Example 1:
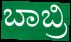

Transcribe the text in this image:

ಬಾಬ್ರಿ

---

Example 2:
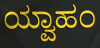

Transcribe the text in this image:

ಯ್ವಾಹಂ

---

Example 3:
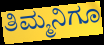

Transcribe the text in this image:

ತಿಮ್ಮನಿಗೂ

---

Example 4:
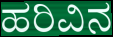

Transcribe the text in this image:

ಹರಿವಿನ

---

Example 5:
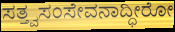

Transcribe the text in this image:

ಸತ್ತ್ವಸಂಸೇವನಾದ್ಧೀರೋ